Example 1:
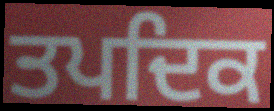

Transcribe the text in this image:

ਤਪਦਿਕ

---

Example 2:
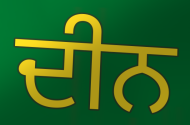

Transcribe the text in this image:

ਦੀਨ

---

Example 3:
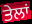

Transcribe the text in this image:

ਤੇਲਾਂ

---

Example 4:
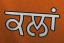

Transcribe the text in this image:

ਕਲਾਂ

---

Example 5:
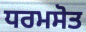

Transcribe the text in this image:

ਧਰਮਸੋਤ